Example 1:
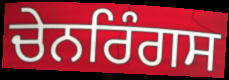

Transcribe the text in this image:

ਚੇਨਰਿੰਗਸ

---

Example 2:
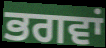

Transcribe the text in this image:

ਭਗਵਾਂ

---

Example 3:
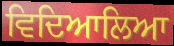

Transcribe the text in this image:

ਵਿਦਿਆਲਿਆ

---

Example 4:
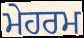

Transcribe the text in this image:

ਮੇਹਰਮ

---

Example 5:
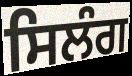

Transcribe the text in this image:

ਸਿਲੰਗ